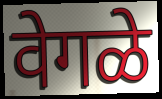
वेगळे